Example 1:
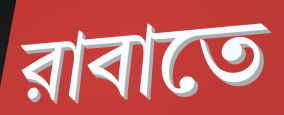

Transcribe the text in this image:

রাবাতে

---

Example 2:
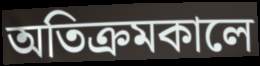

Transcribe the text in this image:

অতিক্রমকালে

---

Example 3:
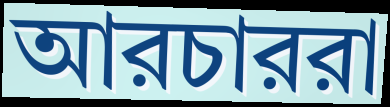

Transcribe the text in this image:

আরচাররা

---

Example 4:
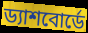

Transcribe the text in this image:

ড্যাশবোর্ডে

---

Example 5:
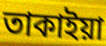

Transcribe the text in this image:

তাকাইয়া